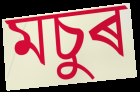
মচুৰ